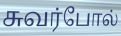
சுவர்போல்